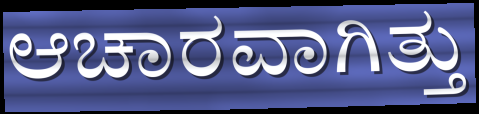
ಆಚಾರವಾಗಿತ್ತು